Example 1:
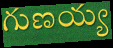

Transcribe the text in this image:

గుణయ్య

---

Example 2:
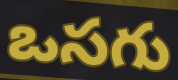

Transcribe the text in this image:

ఒసగు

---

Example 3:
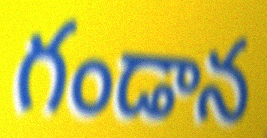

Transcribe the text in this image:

గండాన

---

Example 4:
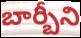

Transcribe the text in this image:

బార్బీని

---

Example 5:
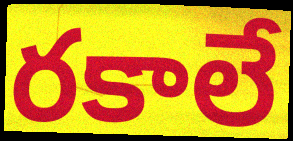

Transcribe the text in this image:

రకాలే